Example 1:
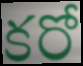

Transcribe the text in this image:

కరో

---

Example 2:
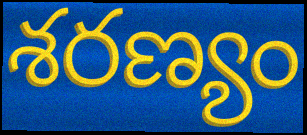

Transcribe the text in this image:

శరణ్యం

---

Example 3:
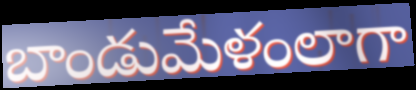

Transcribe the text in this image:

బాండుమేళంలాగా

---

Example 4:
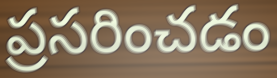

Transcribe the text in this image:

ప్రసరించడం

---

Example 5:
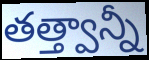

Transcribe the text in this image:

తత్త్వాన్నీ